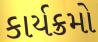
કાર્યક્રમો